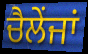
ਚੈਲੇਂਜਾਂ